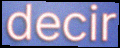
decir